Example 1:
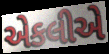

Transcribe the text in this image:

એકલીએ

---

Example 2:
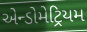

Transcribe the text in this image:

એન્ડોમેટ્રિયમ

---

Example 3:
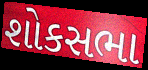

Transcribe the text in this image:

શોકસભા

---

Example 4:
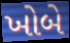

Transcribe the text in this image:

ખોબે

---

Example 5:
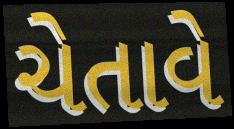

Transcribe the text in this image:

ચેતાવે